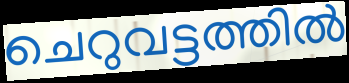
ചെറുവട്ടത്തിൽ